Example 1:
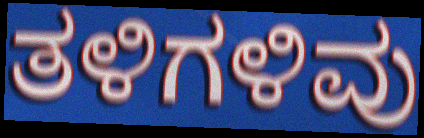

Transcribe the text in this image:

ತಳಿಗಳಿವು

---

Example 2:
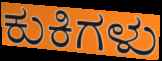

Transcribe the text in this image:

ಕುಕಿಗಳು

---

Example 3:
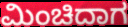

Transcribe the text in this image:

ಮಿಂಚಿದಾಗ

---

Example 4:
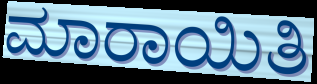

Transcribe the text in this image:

ಮಾರಾಯಿತಿ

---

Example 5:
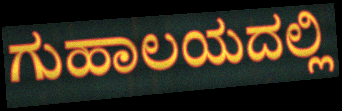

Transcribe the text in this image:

ಗುಹಾಲಯದಲ್ಲಿ